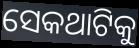
ସେକଥାଟିକୁ